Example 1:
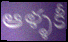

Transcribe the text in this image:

ఆళ్ళకీ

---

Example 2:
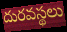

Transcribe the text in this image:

దురవస్థలు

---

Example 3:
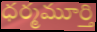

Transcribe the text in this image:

ధర్మమూర్తి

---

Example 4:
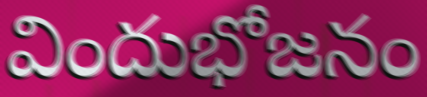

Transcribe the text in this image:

విందుభోజనం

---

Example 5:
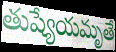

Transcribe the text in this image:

తుష్యేయమృతే